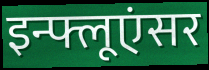
इन्फ्लूएंसर